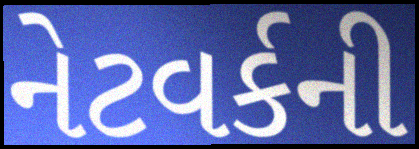
નેટવર્કની